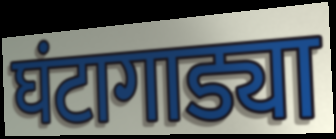
घंटागाड्या